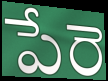
పేరె